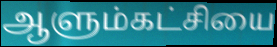
ஆளும்கட்சியை